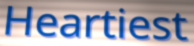
Heartiest